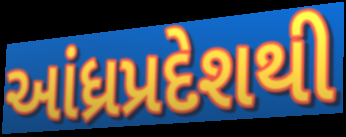
આંધ્રપ્રદેશથી